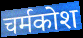
चर्मकोश